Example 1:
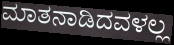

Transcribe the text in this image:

ಮಾತನಾಡಿದವಳಲ್ಲ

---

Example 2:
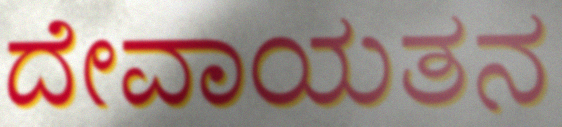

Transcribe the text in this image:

ದೇವಾಯತನ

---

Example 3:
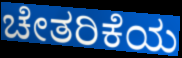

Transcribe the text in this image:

ಚೇತರಿಕೆಯ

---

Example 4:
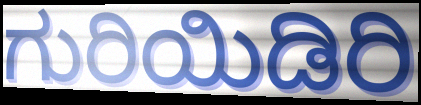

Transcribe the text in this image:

ಗುರಿಯಿಡಿರಿ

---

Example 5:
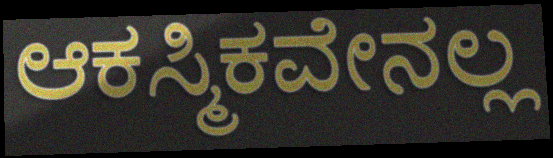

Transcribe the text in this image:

ಆಕಸ್ಮಿಕವೇನಲ್ಲ